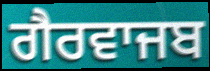
ਗੈਰਵਾਜਬ